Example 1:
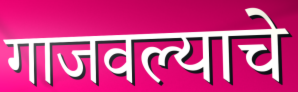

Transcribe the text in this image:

गाजवल्याचे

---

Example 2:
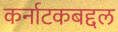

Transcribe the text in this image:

कर्नाटकबद्दल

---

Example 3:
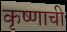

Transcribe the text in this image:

कृष्णाची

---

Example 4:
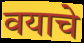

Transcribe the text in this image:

वयाचे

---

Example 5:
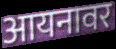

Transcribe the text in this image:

आयनावर